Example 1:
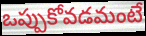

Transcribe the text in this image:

ఒప్పుకోవడమంటే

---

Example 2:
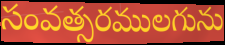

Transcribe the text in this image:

సంవత్సరములగును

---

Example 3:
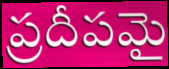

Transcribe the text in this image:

ప్రదీపమై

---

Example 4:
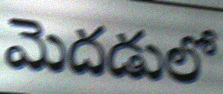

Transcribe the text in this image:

మెదడులో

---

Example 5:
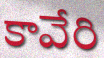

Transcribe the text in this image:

కావేరి